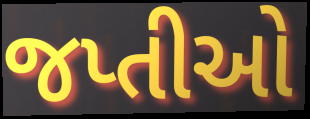
જપ્તીઓ